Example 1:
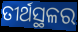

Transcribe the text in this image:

ତୀର୍ଥସ୍ଥଳର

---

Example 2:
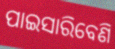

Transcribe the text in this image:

ପାଇସାରିବେଣି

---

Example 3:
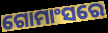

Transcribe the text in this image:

ଗୋମାଂସରେ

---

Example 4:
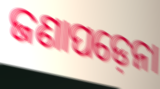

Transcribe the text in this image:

ଜଣାପଡ଼େନା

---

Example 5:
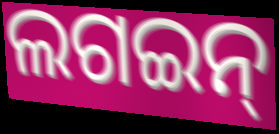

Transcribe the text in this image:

ଲଗଇନ୍